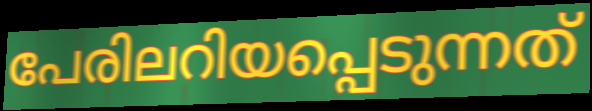
പേരിലറിയപ്പെടുന്നത്